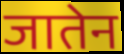
जातेन